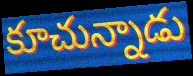
కూచున్నాడు